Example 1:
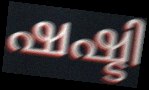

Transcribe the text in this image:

ഷഷ്ടി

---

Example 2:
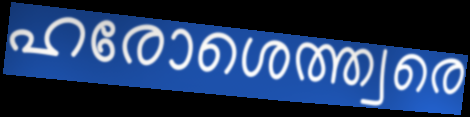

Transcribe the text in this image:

ഹരോശെത്ത്വരെ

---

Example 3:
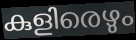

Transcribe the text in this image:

കുളിരെഴും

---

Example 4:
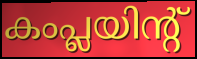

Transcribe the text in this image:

കംപ്ലയിന്റ്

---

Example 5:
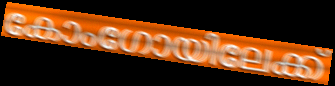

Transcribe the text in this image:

കോംഗോയിലേക്ക്